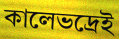
কালেভদ্রেই